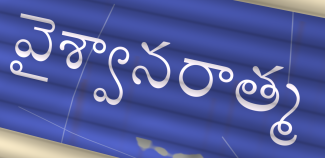
వైశ్వానరాత్మ